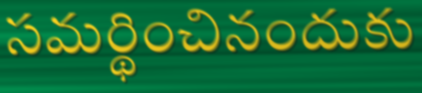
సమర్థించినందుకు